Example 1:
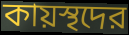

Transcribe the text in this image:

কায়স্থদের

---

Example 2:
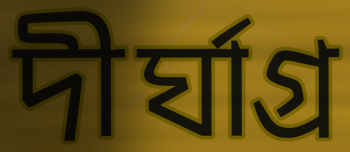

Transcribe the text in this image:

দীর্ঘাগ্র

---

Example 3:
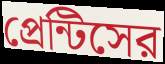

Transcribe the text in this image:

প্রেন্টিসের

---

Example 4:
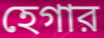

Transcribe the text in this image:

হেগার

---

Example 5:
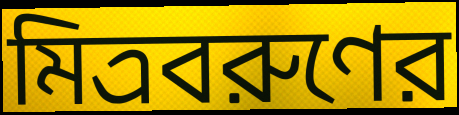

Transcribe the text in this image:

মিত্রবরুণের